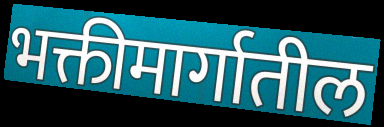
भक्तीमार्गातील